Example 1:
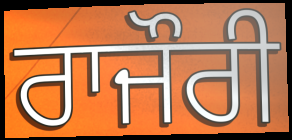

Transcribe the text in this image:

ਰਾਜੌਰੀ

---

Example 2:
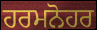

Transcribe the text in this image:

ਹਰਮਨੋਹਰ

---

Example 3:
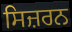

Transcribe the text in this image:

ਸਿਜ਼ਰਨ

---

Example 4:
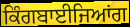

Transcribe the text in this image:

ਕਿੰਗਬਾਈਜਿਆਂਗ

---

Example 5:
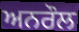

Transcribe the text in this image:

ਅਨਰੌਲ